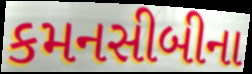
કમનસીબીના